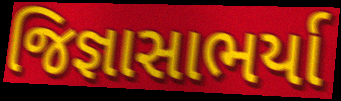
જિજ્ઞાસાભર્યા